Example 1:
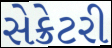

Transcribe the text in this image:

સેક્રેટરી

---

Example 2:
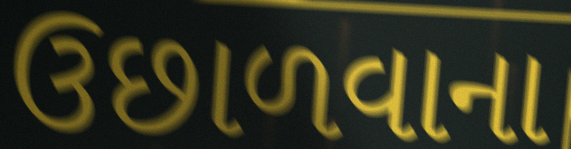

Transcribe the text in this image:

ઉછાળવાના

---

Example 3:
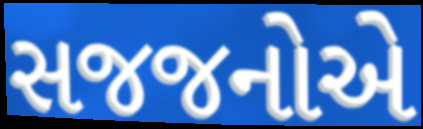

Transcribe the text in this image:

સજજનોએ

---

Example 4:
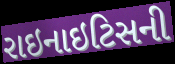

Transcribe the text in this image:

રાઇનાઇટિસની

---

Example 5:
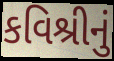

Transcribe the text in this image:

કવિશ્રીનું